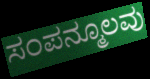
ಸಂಪನ್ಮೂಲವು